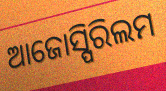
ଆଜୋସ୍ପିରିଲମ